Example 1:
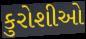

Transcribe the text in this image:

કુરોશીઓ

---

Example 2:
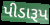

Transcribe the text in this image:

પીડારૂપ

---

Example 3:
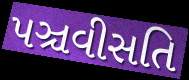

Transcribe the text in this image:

પઞ્ચવીસતિ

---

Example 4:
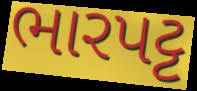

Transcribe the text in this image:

ભારપટ્ટ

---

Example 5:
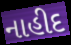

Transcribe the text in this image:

નાહીદ